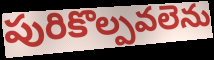
పురికొల్పవలెను